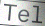
Tel